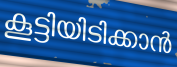
കൂട്ടിയിടിക്കാൻ